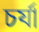
চর্যা